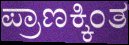
ಪ್ರಾಣಕ್ಕಿಂತ